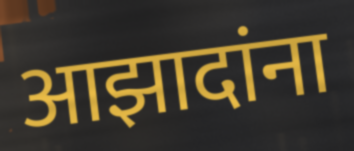
आझादांना